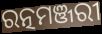
ରତ୍ନମଞ୍ଜରୀ